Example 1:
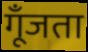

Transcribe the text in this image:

गूँजता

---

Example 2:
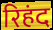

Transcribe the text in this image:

रिहंद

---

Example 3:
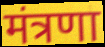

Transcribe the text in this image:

मंत्रणा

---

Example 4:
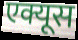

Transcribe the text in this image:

एक्यूस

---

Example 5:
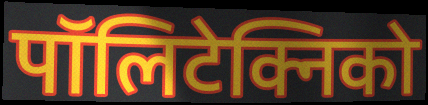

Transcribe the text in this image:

पॉलिटेक्निको